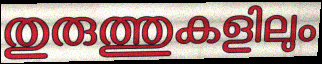
തുരുത്തുകളിലും